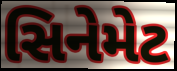
સિનેમેટ